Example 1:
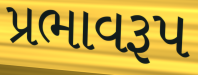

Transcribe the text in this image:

પ્રભાવરૂપ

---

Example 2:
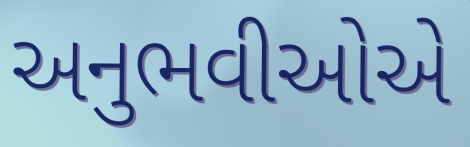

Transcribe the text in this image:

અનુભવીઓએ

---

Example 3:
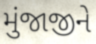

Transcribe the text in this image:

મુંજાજીને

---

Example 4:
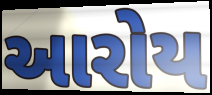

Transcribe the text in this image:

આરોય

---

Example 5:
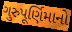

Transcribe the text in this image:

ગુરુપૂર્ણિમાનો